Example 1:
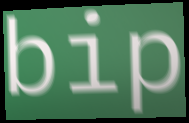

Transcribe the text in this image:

bip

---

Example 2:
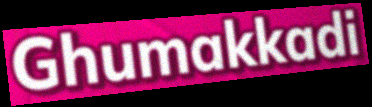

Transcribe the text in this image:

Ghumakkadi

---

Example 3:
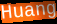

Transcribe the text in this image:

Huang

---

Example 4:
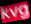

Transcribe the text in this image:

kvg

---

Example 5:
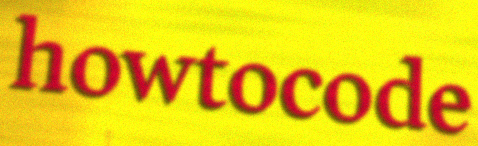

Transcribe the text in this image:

howtocode